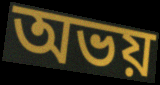
অভয়